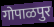
गोपाळपुर